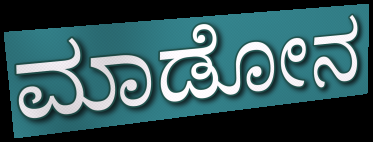
ಮಾಡೋನ